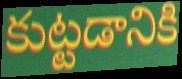
కుట్టడానికి